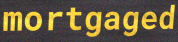
mortgaged